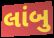
લાંબુ